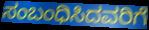
ಸಂಬಂಧಿಸಿದವರಿಗೆ